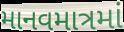
માનવમાત્રમાં